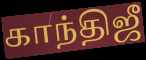
காந்திஜீ